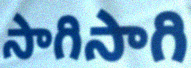
సాగిసాగి